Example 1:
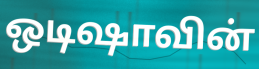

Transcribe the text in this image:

ஒடிஷாவின்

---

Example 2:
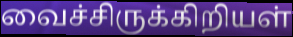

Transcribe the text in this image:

வைச்சிருக்கிறியள்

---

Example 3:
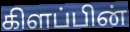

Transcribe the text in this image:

கிளப்பின்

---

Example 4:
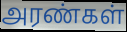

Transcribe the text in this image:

அரண்கள்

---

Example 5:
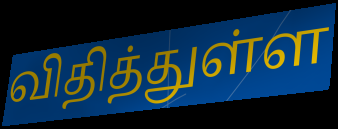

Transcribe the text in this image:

விதித்துள்ள